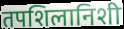
तपशिलानिशी